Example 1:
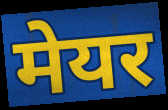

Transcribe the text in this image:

मेयर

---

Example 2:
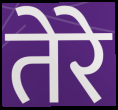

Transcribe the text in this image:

तेरे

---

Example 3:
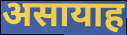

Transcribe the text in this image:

असायाह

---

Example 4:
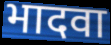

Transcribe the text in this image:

भादवा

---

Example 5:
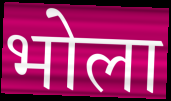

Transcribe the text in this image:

भोला